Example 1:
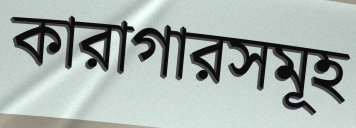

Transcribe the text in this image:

কারাগারসমূহ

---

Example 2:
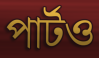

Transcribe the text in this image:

পার্টও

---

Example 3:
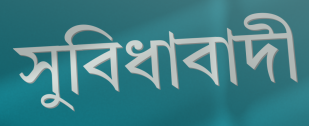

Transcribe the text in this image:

সুবিধাবাদী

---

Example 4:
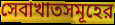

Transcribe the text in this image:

সেবাখাতসমূহের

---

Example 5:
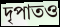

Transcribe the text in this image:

দৃপাতও